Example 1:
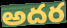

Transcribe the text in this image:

అదర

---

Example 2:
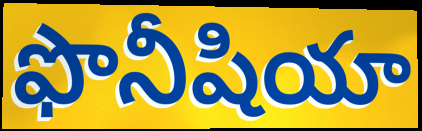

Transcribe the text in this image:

ఫొనీషియా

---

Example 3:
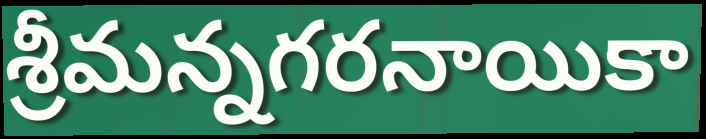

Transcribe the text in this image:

శ్రీమన్నగరనాయికా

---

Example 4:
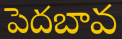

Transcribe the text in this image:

పెదబావ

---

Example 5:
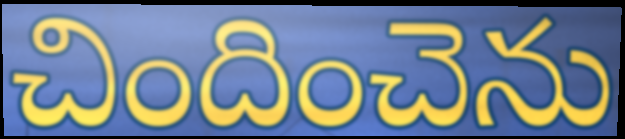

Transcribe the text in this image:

చిందించెను